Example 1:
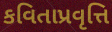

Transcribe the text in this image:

કવિતાપ્રવૃત્તિ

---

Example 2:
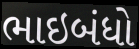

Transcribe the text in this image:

ભાઇબંધો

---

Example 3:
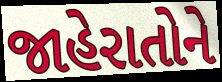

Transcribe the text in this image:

જાહેરાતોને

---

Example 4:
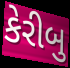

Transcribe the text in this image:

કેરીબુ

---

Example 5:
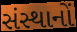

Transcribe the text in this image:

સંસ્થાનોં